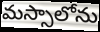
మస్సాలోను